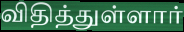
விதித்துள்ளார்